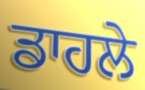
ਡਾਹਲੇ